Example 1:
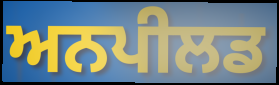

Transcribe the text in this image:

ਅਨਪੀਲਡ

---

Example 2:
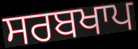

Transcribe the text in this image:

ਸਰਬਖਾਪ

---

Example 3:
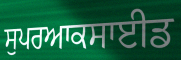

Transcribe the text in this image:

ਸੁਪਰਆਕਸਾਈਡ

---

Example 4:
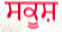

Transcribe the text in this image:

ਸਕੂਸ਼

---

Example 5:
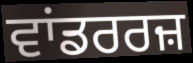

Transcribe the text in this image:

ਵਾਂਡਰਰਜ਼